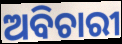
ଅବିଚାରୀ